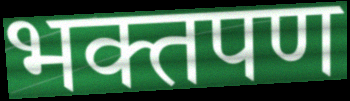
भक्तपण